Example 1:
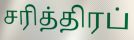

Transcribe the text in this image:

சரித்திரப்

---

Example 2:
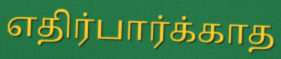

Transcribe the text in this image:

எதிர்பார்க்காத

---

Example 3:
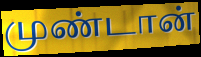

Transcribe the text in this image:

முண்டான்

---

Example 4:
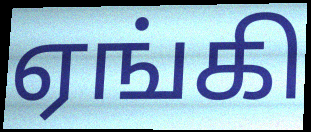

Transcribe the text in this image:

ஏங்கி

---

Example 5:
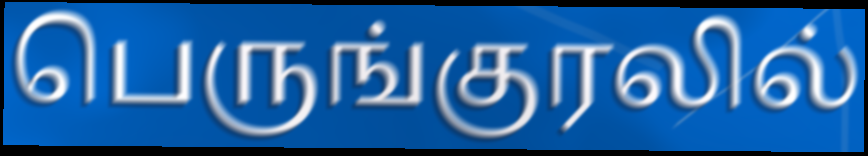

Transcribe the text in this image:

பெருங்குரலில்